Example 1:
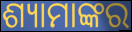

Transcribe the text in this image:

ଶ୍ୟାମାଙ୍କର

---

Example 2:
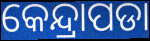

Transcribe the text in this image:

କେନ୍ଦ୍ରାପଡା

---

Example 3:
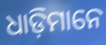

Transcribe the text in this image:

ଧାଡ଼ିମାନେ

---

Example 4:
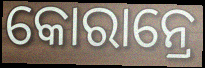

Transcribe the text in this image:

କୋରାନ୍ରେ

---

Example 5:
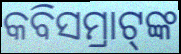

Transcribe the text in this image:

କବିସମ୍ରାଟ୍‌ଙ୍କ